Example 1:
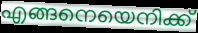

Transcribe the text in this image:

എങ്ങനെയെനിക്ക്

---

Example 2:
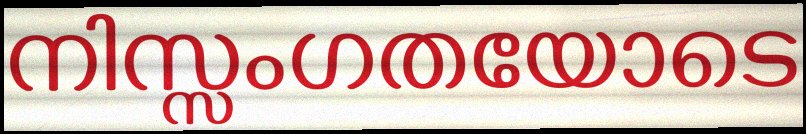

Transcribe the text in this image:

നിസ്സംഗതയോടെ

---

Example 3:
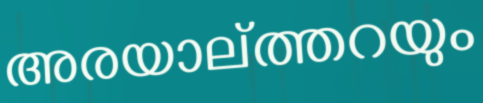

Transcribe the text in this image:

അരയാല്ത്തറയും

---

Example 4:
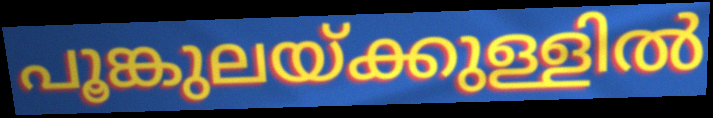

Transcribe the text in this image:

പൂങ്കുലയ്ക്കുള്ളിൽ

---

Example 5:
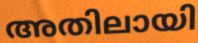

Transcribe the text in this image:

അതിലായി